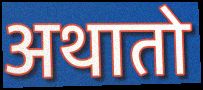
अथातो